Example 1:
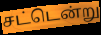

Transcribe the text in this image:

சட்டென்று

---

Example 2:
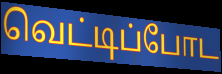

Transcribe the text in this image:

வெட்டிப்போட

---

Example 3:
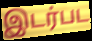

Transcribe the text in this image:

இடர்பட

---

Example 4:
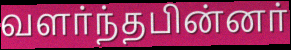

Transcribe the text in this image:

வளர்ந்தபின்னர்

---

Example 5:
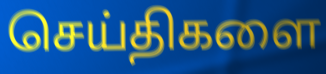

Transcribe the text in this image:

செய்திகளை